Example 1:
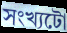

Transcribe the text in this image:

সংখ্যটো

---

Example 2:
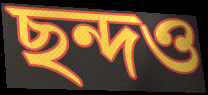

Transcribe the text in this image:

ছন্দও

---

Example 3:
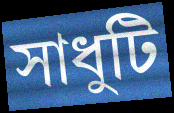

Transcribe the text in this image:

সাধুটি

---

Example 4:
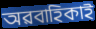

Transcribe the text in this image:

অৱবাহিকাই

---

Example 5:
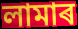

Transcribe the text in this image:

লামাৰ